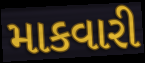
માકવારી